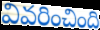
వివరించింది